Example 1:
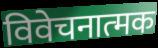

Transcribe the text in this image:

विवेचनात्‍मक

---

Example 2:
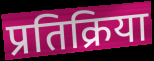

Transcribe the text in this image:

प्रतिक्रिया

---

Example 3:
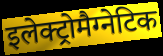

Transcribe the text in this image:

इलेक्ट्रोमैग्नेटिक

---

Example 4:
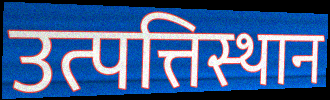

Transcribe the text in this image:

उत्पत्तिस्थान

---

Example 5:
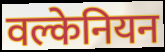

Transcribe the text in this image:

वल्केनियन